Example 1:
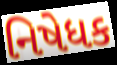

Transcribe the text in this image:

નિષેધક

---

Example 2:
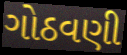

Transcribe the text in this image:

ગોઠવણી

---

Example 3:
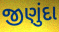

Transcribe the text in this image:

જીણુંદા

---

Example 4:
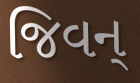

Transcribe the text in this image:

જિવન્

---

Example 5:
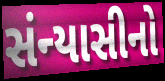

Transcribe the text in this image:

સંન્યાસીનો